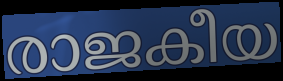
രാജകീയ